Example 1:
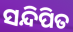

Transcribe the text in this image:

ସନ୍ଦିପିତ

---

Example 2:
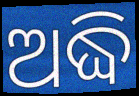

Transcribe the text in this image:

ଅଦ୍ଧି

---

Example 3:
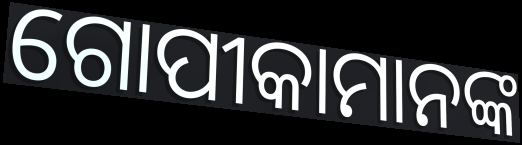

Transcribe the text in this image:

ଗୋପୀକାମାନଙ୍କ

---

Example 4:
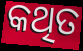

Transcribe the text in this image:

କଥିତ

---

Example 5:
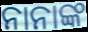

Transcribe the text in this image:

ନାନାଙ୍କ